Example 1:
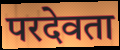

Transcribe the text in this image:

परदेवता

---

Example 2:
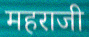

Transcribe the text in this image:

महराजी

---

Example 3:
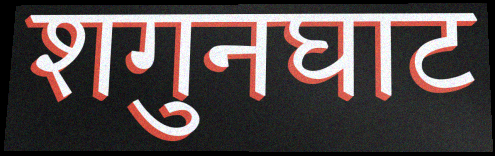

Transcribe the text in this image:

शगुनघाट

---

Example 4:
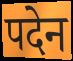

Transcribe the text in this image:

पदेन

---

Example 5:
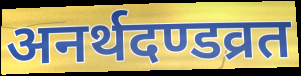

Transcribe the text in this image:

अनर्थदण्डव्रत